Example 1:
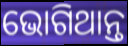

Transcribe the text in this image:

ଭୋଗିଥାନ୍ତ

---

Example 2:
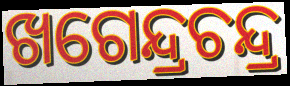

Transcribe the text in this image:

ଖଗେନ୍ଦ୍ରଚନ୍ଦ୍ର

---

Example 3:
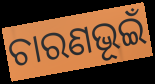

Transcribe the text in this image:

ଚାରଣଭୂଇଁ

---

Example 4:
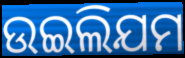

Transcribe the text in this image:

ଉଇଲିଯମ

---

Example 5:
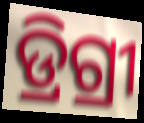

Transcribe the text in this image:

ଡ୍ରିଗ୍ରୀ